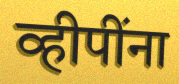
व्हीपींना